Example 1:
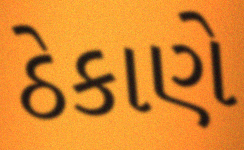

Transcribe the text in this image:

ઠેકાણે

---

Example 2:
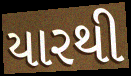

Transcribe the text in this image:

યારથી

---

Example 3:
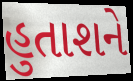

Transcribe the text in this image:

હુતાશને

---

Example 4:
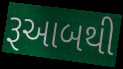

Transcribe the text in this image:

રૂઆબથી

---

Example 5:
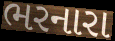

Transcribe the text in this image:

ભરનારા